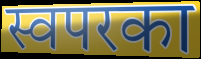
स्वपरका